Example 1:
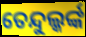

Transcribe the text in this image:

ତେନ୍ଦୁଲ୍କର୍ଙ୍କ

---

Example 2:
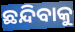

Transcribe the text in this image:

ଛନ୍ଦିବାକୁ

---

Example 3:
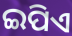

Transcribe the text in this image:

ଇପିଏ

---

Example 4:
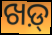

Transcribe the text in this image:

ଖଡ଼୍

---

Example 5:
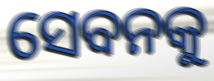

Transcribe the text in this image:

ସେବନକୁ